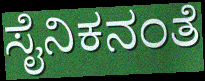
ಸೈನಿಕನಂತೆ